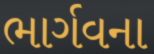
ભાર્ગવના